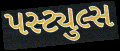
પસ્ટ્યુલ્સ